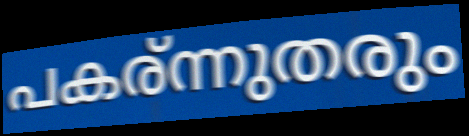
പകര്ന്നുതരും